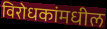
विरोधकांमधील